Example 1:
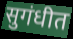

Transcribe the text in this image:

सुगंधीत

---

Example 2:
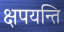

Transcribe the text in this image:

क्षपयन्ति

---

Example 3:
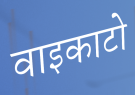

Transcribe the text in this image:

वाइकाटो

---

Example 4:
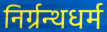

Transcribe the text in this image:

निर्ग्रन्थधर्म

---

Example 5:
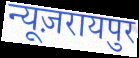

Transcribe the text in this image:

न्यूज़रायपुर